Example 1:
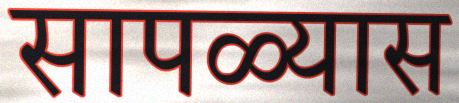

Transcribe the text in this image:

सापळ्यास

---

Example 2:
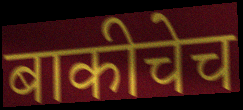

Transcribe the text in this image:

बाकीचेच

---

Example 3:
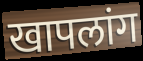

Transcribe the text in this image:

खापलांग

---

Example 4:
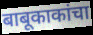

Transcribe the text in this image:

बाबूकाकांचा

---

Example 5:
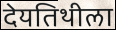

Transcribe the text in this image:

देयतिथीला